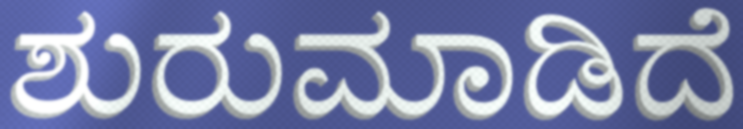
ಶುರುಮಾಡಿದೆ